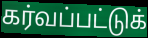
கர்வப்பட்டுக்